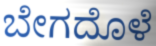
ಬೇಗದೊಳೆ